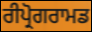
ਰੀਪ੍ਰੋਗਰਾਮਡ